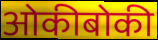
ओकीबोकी